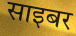
साइबर